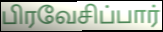
பிரவேசிப்பார்